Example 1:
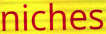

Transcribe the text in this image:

niches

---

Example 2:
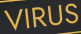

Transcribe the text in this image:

VIRUS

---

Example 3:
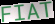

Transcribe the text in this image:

FIAT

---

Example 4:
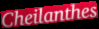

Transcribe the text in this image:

Cheilanthes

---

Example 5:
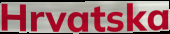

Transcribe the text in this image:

Hrvatska